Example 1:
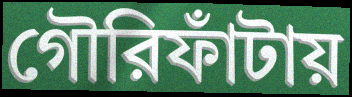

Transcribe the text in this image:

গৌরিফাঁটায়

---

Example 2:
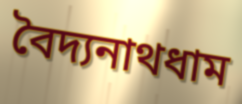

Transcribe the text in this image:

বৈদ্যনাথধাম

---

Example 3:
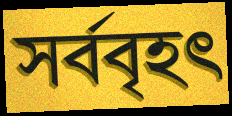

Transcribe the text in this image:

সর্ববৃহৎ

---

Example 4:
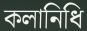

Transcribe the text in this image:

কলানিধি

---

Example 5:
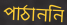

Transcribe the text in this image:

পাঠাননি